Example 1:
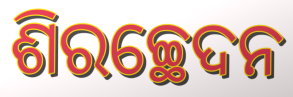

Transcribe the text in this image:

ଶିରଚ୍ଛେଦନ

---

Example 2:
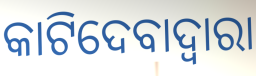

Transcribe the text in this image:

କାଟିଦେବାଦ୍ଵାରା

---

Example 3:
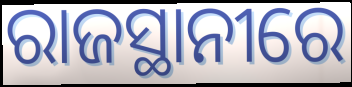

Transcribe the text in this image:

ରାଜସ୍ଥାନୀରେ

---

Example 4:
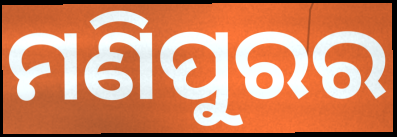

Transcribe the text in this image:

ମଣିପୁରର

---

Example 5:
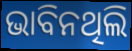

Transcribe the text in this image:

ଭାବିନଥିଲି